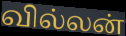
வில்லன்